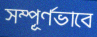
সম্পূর্ণভাবে